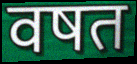
वषत